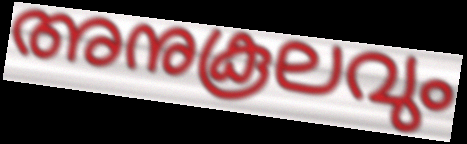
അനുകൂലവും